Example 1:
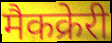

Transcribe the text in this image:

मैकक्रेरी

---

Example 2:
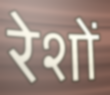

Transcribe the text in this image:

रेशों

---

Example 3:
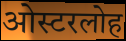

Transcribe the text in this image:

ओस्टरलोह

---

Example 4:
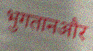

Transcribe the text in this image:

भुगतानऔर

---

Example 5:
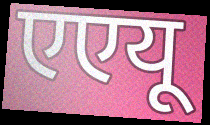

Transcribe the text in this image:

एएयू